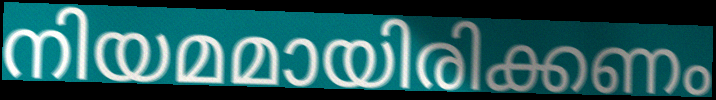
നിയമമായിരിക്കണം